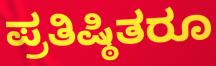
ಪ್ರತಿಷ್ಠಿತರೂ